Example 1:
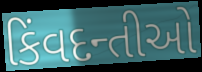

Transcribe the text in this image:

કિંવદન્તીઓ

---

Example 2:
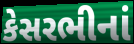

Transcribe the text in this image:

કેસરભીનાં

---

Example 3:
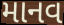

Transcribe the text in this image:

માનવ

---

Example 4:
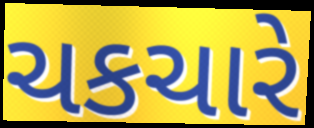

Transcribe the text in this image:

ચકચારે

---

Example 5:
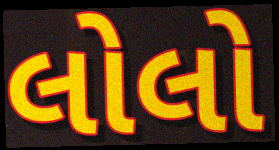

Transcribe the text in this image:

લોલો